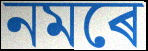
নমৰে